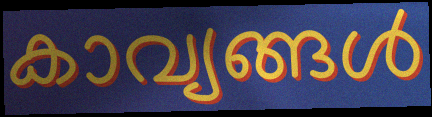
കാവ്യങ്ങൾ